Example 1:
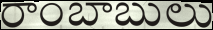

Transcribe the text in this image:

రాంబాబులు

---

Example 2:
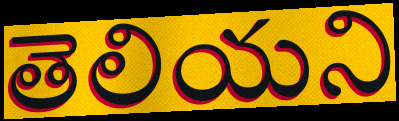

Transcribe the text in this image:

తెలియని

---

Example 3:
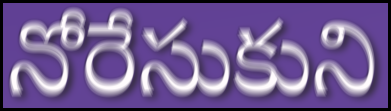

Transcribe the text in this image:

నోరేసుకుని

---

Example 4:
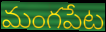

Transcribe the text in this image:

మంగపేట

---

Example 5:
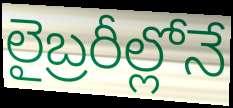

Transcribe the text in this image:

లైబ్రరీల్లోనే